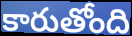
కారుతోంది